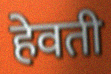
हेवती